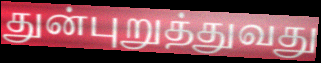
துன்புறுத்துவது